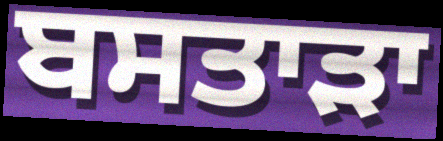
ਬਸਤਾੜਾ